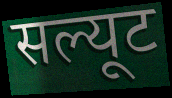
सल्यूट